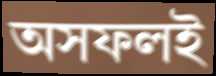
অসফলই